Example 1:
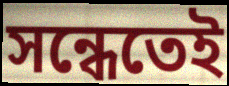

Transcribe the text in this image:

সন্ধেতেই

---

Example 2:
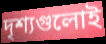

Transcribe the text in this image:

দৃশ্যগুলোই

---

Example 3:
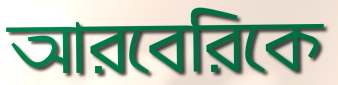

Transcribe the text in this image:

আরবেরিকে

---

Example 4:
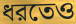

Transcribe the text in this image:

ধরতেও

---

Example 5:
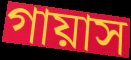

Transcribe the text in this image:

গায়াস